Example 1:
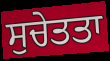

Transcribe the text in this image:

ਸੁਚੇਤਤਾ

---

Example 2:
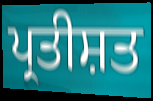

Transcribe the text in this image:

ਪ੍ਰਤੀਸ਼ਤ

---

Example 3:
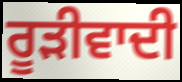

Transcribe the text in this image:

ਰੂੜੀਵਾਦੀ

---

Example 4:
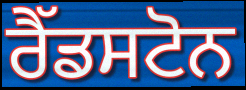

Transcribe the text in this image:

ਰੈੱਡਸਟੋਨ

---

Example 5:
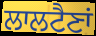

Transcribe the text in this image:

ਲਾਲਟੈਣਾਂ